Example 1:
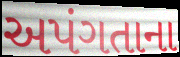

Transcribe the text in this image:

અપંગતાના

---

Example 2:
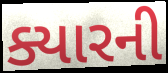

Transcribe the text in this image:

ક્યારની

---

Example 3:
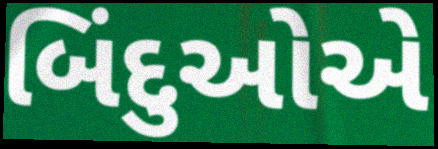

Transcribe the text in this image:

બિંદુઓએ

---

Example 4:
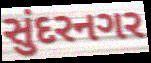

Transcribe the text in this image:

સુંદરનગર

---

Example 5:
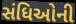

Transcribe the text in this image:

સંધિઓની